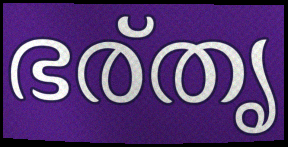
ഭര്തൃ